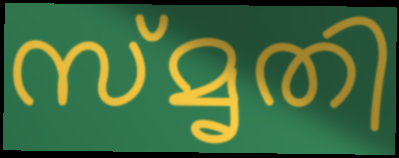
സ്മൃതി